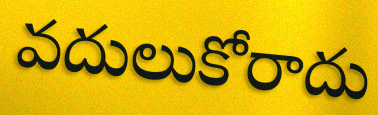
వదులుకోరాదు